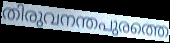
തിരുവനന്തപുരത്തെ